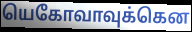
யெகோவாவுக்கென